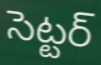
సెట్టర్